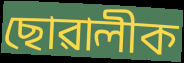
ছোৱালীক